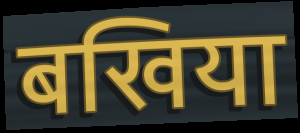
बखिया